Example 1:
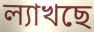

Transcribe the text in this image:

ল্যাখছে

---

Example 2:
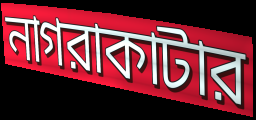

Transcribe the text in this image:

নাগরাকাটার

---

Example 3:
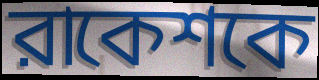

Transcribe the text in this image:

রাকেশকে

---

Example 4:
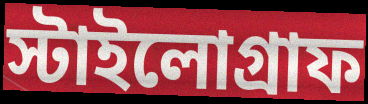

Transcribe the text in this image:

স্টাইলোগ্রাফ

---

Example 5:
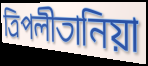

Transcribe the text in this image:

ত্রিপলীতানিয়া